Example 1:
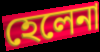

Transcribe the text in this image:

হেলেনা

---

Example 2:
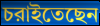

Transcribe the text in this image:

চরাইতেছেন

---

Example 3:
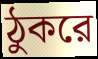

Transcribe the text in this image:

ঠুকরে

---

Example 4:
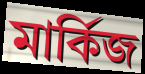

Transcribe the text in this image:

মার্কিজ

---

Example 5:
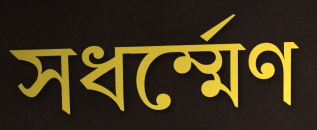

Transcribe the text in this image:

সধর্ম্মেণ